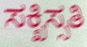
ಸಕ್ಖಿಸ್ಸತಿ